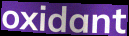
oxidant